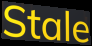
Stale